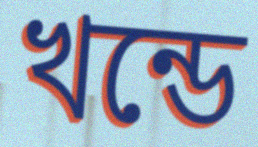
খন্ডে